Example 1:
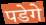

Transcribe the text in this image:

पडेगे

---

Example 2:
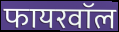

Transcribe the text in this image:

फायरवॉल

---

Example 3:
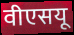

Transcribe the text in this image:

वीएसयू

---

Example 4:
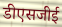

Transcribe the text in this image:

डीएसजीई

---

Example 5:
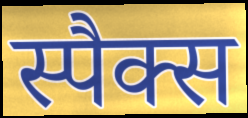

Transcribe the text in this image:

स्पैक्स